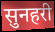
सुनहरी